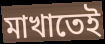
মাখাতেই